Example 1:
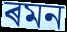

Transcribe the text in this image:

ৰমন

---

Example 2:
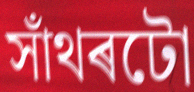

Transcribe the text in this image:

সাঁথৰটো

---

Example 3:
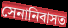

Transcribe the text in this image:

সেনানিবাসত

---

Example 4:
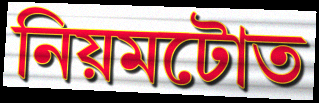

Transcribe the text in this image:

নিয়মটোত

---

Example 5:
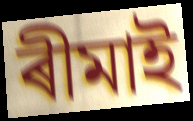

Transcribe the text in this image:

ৰীমাই